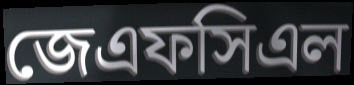
জেএফসিএল